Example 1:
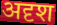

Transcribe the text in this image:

अदृश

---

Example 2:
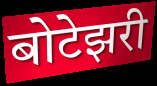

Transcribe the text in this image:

बोटेझरी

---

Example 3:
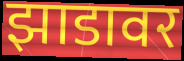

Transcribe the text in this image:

झाडावर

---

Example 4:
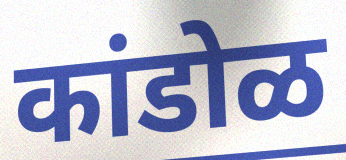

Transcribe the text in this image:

कांडोळ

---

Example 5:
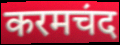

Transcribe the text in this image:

करमचंद